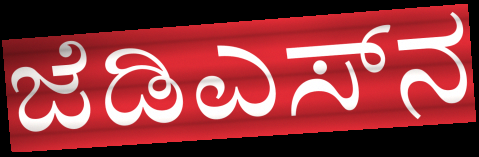
ಜೆಡಿಎಸ್‌ನ